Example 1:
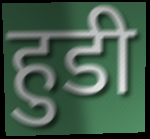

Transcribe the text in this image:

हुडी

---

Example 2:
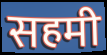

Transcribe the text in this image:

सहमी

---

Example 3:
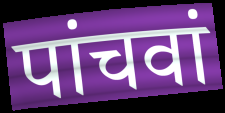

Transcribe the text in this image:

पांचवां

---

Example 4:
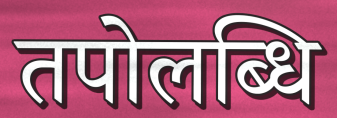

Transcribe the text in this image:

तपोलब्धि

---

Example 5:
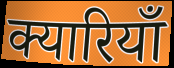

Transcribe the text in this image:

क्यारियाँ